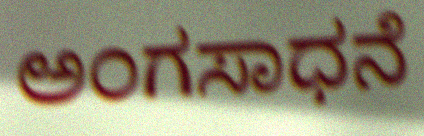
ಅಂಗಸಾಧನೆ